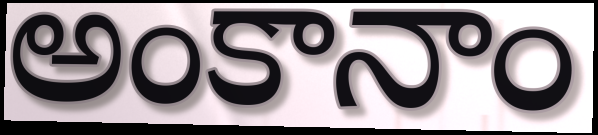
అంకానాం